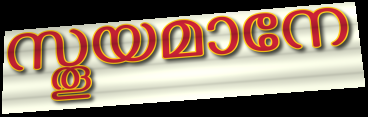
സ്തൂയമാനേ